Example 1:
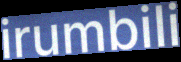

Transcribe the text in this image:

irumbili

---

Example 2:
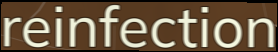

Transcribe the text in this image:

reinfection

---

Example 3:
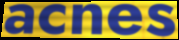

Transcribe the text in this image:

acnes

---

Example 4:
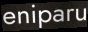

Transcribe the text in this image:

eniparu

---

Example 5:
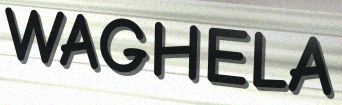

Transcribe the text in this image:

WAGHELA